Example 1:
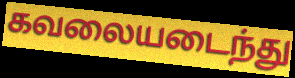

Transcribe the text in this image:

கவலையடைந்து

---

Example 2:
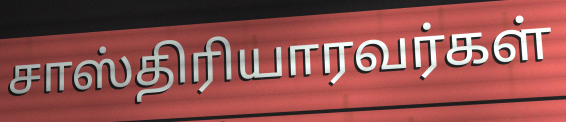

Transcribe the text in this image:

சாஸ்திரியாரவர்கள்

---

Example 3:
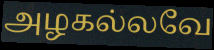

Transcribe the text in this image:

அழகல்லவே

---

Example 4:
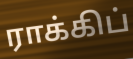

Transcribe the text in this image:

ராக்கிப்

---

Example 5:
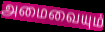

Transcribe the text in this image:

அமைவையும்